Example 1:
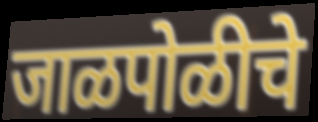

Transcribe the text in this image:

जाळपोळीचे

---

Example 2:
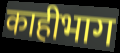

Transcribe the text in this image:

काहीभाग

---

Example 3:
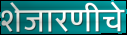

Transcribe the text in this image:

शेजारणीचे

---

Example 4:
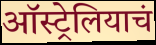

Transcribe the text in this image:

ऑस्ट्रेलियाचं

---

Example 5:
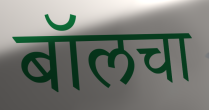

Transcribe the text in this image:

बॉलचा